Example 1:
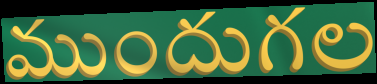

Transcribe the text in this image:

ముందుగల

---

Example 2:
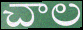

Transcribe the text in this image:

చాల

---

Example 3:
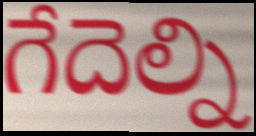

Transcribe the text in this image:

గేదెల్ని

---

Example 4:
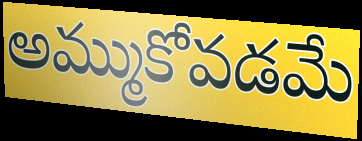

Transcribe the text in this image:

అమ్ముకోవడమే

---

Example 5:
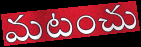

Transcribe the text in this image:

మటంచు